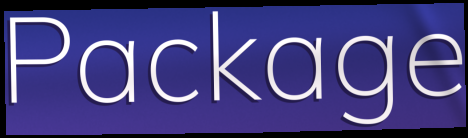
Package